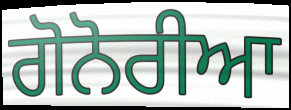
ਗੋਨੋਰੀਆ